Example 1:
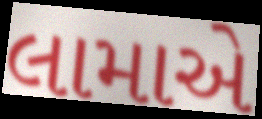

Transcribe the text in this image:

લામાએ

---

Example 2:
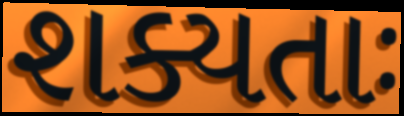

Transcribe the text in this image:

શક્યતાઃ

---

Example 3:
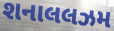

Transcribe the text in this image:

શનાલલઝમ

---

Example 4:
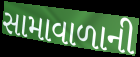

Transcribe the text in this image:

સામાવાળાની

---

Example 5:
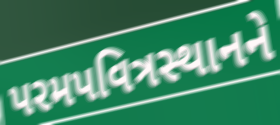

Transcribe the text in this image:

પરમપવિત્રસ્થાનને